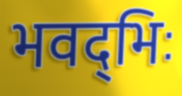
भवद्‌भिः